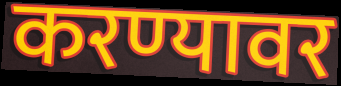
करण्यावर